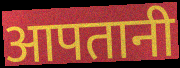
आपतानी